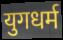
युगधर्म